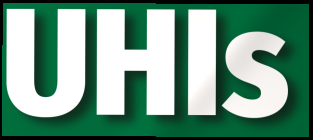
UHIs